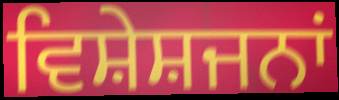
ਵਿਸ਼ੇਸ਼ਜਨਾਂ